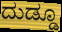
ದುಡ್ಡೂ